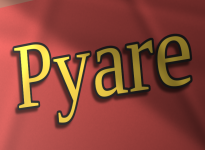
Pyare